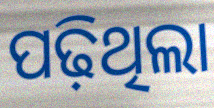
ପଢ଼ିଥିଲା